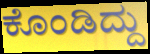
ಕೊಂಡಿದ್ದು